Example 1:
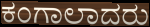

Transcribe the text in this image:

ಕಂಗಾಲಾದರು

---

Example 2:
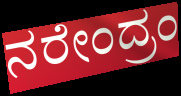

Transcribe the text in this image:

ನರೇಂದ್ರಂ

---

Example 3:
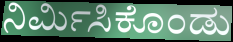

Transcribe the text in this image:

ನಿರ್ಮಿಸಿಕೊಂಡು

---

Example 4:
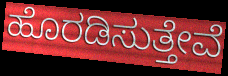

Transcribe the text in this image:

ಹೊರಡಿಸುತ್ತೇವೆ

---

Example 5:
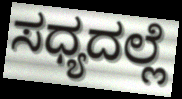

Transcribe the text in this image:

ಸಧ್ಯದಲ್ಲೆ